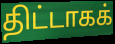
திட்டாகக்